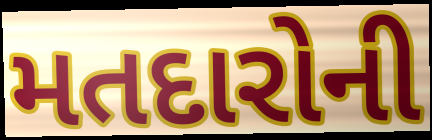
મતદારોની